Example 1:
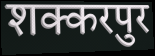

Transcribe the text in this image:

शक्करपुर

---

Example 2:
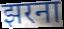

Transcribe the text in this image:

झरना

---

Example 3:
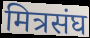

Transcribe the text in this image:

मित्रसंघ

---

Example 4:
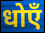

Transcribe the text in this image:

धोएँ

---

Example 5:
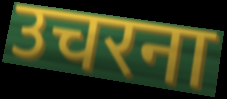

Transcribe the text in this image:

उचरना